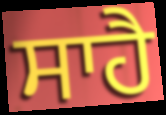
ਸਾਹੈ